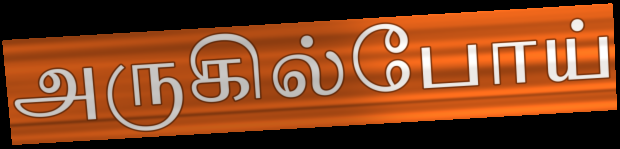
அருகில்போய்